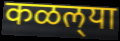
कळल्या